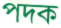
পদক